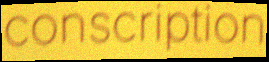
conscription